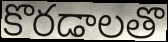
కొరడాలతొ